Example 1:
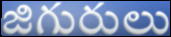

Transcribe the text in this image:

జిగురులు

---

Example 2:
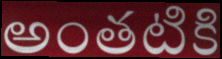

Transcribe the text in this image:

అంతటికి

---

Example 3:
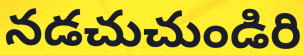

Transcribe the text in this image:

నడచుచుండిరి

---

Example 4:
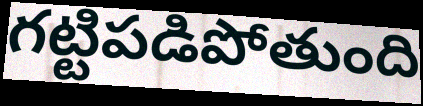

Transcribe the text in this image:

గట్టిపడిపోతుంది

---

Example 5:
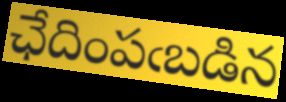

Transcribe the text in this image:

ఛేదింపఁబడిన